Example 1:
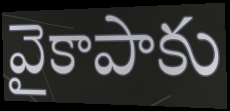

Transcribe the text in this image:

వైకాపాకు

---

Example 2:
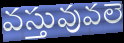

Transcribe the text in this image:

వస్తువువలె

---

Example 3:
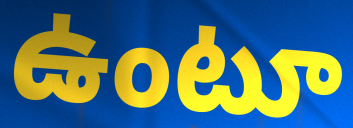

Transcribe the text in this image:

ఉంటూ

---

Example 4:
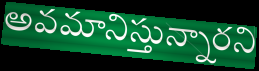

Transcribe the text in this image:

అవమానిస్తున్నారని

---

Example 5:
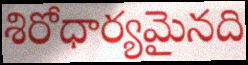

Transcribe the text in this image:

శిరోధార్యమైనది